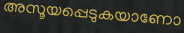
അസൂയപ്പെടുകയാണോ